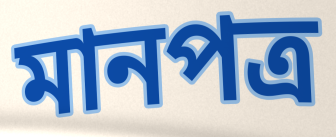
মানপত্র